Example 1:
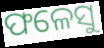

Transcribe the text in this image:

ଫଳେସୁ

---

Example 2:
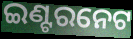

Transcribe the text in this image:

ଇଣ୍ଟରନେଟ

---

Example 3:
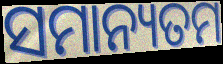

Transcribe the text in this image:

ସମାନ୍ୟତମ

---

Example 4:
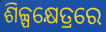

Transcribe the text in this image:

ଶିଳ୍ପକ୍ଷେତ୍ରରେ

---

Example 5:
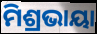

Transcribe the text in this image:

ମିଶ୍ରଭାୟା